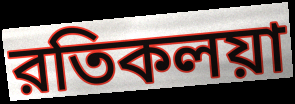
রতিকলয়া